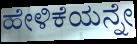
ಹೇಳಿಕೆಯನ್ನೇ